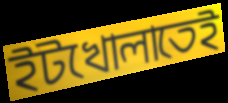
ইটখোলাতেই